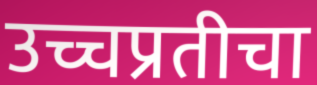
उच्चप्रतीचा